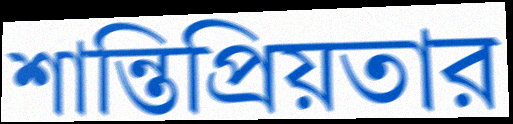
শান্তিপ্রিয়তার